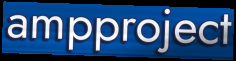
ampproject